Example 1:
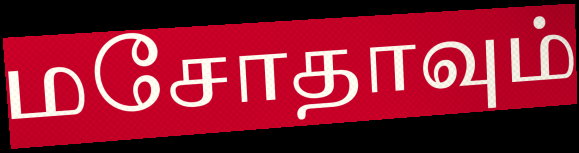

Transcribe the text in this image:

மசோதாவும்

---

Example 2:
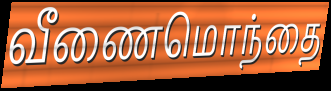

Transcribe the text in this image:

வீணைமொந்தை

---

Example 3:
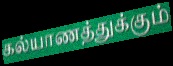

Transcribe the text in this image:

கல்யாணத்துக்கும்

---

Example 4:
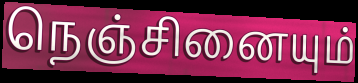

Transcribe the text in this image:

நெஞ்சினையும்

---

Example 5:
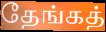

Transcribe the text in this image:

தேங்கத்